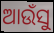
ଆଉଁସୁ